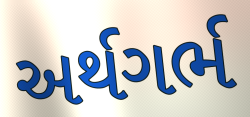
અર્થગર્ભ